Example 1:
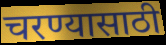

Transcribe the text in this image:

चरण्यासाठी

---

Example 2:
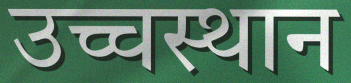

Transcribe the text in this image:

उच्चस्थान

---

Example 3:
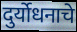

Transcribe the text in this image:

दुर्योधनाचे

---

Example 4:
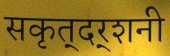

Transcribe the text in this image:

सकृत्‌दर्शनी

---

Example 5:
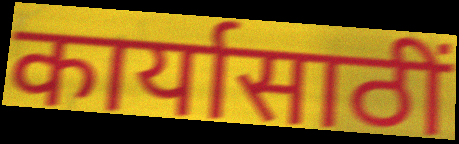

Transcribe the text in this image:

कार्यासाठीं